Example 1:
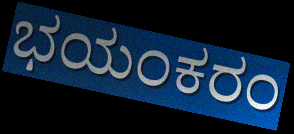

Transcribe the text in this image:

ಭಯಂಕರಂ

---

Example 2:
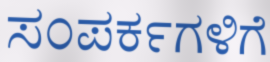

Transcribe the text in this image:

ಸಂಪರ್ಕಗಳಿಗೆ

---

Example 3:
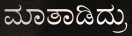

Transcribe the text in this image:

ಮಾತಾಡಿದ್ರು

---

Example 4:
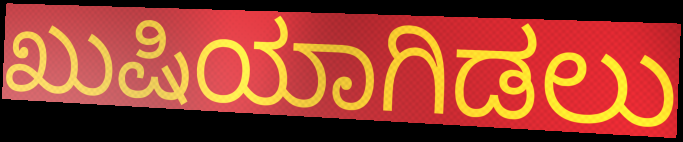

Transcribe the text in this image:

ಖುಷಿಯಾಗಿಡಲು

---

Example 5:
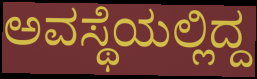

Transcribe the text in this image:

ಅವಸ್ಥೆಯಲ್ಲಿದ್ದ